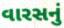
વારસનું